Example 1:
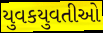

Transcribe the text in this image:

યુવકયુવતીઓ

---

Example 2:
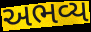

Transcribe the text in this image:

અભવ્ય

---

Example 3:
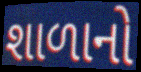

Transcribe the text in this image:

શાળાનો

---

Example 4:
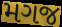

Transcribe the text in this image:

મગજ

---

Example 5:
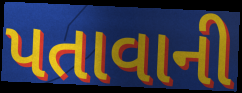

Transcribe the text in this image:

પતાવાની